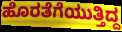
ಹೊರತೆಗೆಯುತ್ತಿದ್ದ